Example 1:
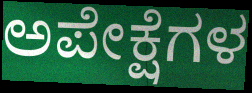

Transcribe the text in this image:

ಅಪೇಕ್ಷೆಗಳ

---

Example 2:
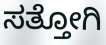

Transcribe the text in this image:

ಸತ್ತೋಗಿ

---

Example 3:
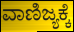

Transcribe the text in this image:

ವಾಣಿಜ್ಯಕ್ಕೆ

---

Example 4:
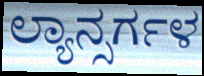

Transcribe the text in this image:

ಲ್ಯಾನ್ಸರ್ಗಳ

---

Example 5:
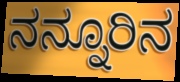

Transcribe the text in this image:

ನನ್ನೂರಿನ